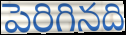
పెరిగినది